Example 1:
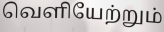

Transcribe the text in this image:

வெளியேற்றும்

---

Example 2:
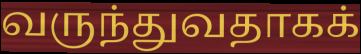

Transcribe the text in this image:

வருந்துவதாகக்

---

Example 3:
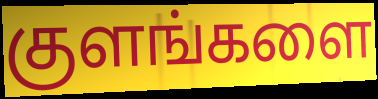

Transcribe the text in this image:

குளங்களை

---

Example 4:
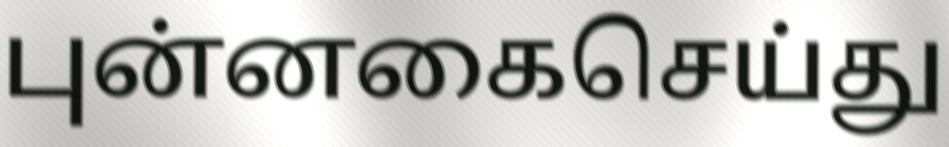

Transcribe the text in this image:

புன்னகைசெய்து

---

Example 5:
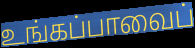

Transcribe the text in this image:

உங்கப்பாவைப்